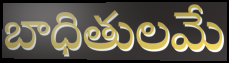
బాధితులమే